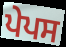
ਪੇਪਸ